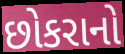
છોકરાનો